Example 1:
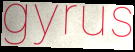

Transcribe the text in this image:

gyrus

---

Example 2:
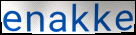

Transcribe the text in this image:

enakke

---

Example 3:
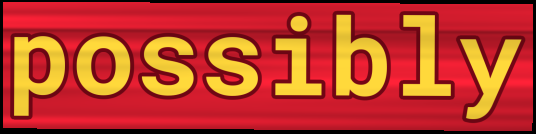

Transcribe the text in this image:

possibly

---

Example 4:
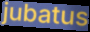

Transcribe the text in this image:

jubatus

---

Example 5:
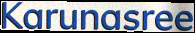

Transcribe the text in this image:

Karunasree